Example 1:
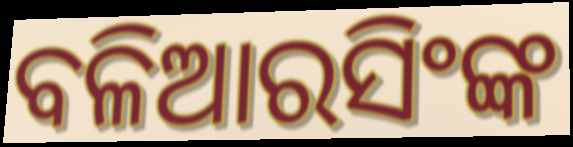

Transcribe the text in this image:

ବଳିଆରସିଂଙ୍କ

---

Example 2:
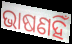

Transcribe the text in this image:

ଭାଷଣହିଁ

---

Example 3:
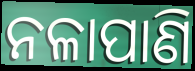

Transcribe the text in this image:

ନଳାପାଣି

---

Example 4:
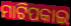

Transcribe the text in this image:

ମାଟିପକାଇ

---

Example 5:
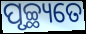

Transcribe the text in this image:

ପୃଚ୍ଛ୍ୟତେ